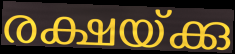
രക്ഷയ്‌ക്കു